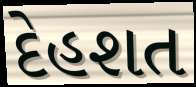
દેહશત